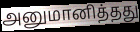
அனுமானித்தது